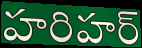
హరిహర్